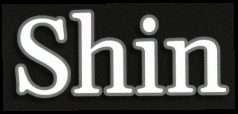
Shin